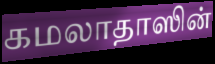
கமலாதாஸின்